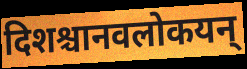
दिशश्चानवलोकयन्